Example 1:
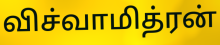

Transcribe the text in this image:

விச்வாமித்ரன்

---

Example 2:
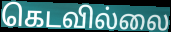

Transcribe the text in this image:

கெடவில்லை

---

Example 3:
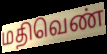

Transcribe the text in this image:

மதிவெண்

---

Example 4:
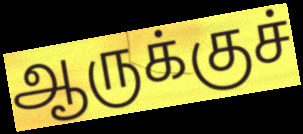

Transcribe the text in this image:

ஆருக்குச்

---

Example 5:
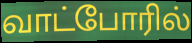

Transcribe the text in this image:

வாட்போரில்